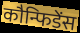
कौन्फिडेंस